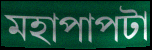
মহাপাপটা